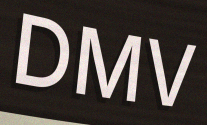
DMV